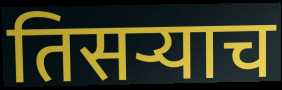
तिसऱ्याच